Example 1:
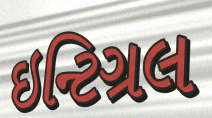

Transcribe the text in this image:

ઇન્ટિગ્રલ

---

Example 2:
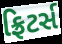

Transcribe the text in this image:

ફ્રિટર્સ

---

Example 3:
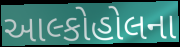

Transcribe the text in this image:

આલ્કોહોલના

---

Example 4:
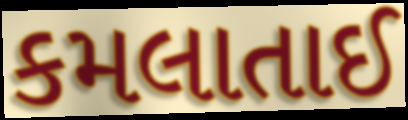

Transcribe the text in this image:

કમલાતાઈ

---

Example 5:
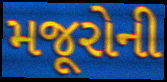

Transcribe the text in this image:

મજૂરોની